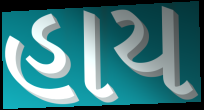
હાય